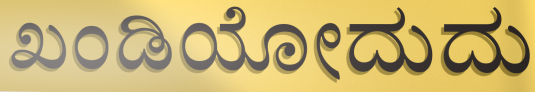
ಖಂಡಿಯೋದುದು